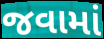
જવામાં